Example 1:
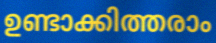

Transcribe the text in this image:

ഉണ്ടാക്കിത്തരാം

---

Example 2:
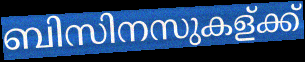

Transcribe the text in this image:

ബിസിനസുകള്ക്ക്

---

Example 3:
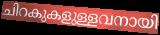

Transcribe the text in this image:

ചിറകുകളുള്ളവനായി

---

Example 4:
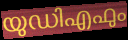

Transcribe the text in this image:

യുഡിഎഫും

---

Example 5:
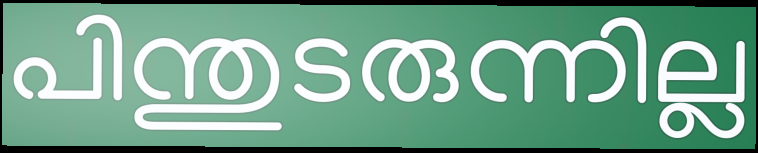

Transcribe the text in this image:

പിന്തുടരുന്നില്ല